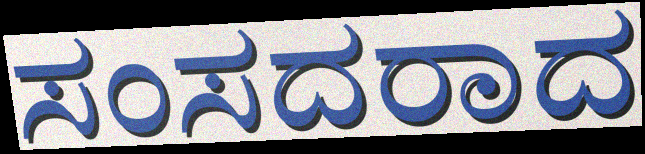
ಸಂಸದರಾದ